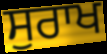
ਸੁਰਾਖ